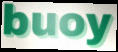
buoy